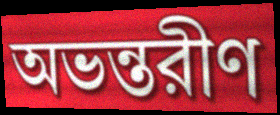
অভন্তরীণ